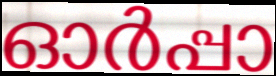
ഓർപ്പാ